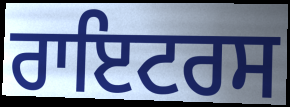
ਰਾਇਟਰਸ